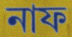
নাফ